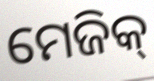
ମେଜିକ୍